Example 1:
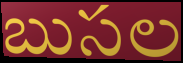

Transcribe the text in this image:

బుసల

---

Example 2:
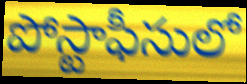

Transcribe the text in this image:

పోస్టాఫీసులో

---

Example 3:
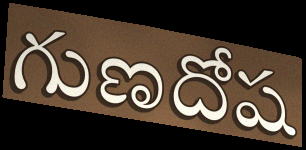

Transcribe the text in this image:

గుణదోష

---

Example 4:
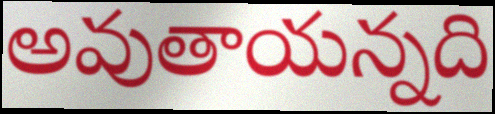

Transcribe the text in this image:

అవుతాయన్నది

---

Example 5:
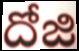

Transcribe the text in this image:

దోజి